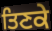
ਤਿਣਕੇ